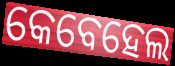
କେବେହେଲ